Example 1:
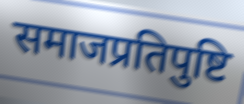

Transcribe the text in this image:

समाजप्रतिपुष्टि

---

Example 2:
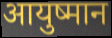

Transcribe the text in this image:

आयुष्मान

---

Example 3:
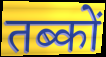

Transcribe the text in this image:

तब्कों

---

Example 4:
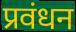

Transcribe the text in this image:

प्रवंधन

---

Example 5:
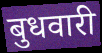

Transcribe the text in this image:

बुधवारी